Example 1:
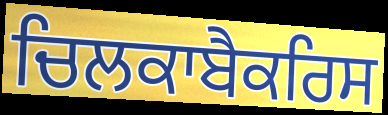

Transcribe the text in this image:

ਚਿਲਕਾਬੈਕਰਿਸ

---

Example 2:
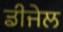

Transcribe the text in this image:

ਡੀਜੇਲ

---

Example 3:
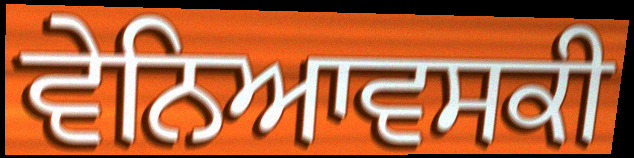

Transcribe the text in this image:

ਵੇਨਿਆਵਸਕੀ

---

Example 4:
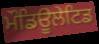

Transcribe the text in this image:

ਮੌਡਿਊਲੇਟਿਡ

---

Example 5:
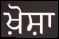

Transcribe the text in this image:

ਖ਼ੋਸ਼ਾ